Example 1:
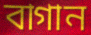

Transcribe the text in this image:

বাগান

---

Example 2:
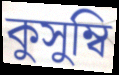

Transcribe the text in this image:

কুসুম্বি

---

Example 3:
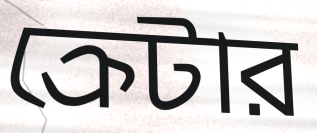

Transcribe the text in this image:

ক্রেটার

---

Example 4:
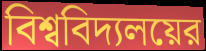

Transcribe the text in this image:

বিশ্ববিদ্যলয়ের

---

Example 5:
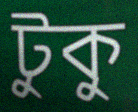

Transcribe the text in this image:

টুকু